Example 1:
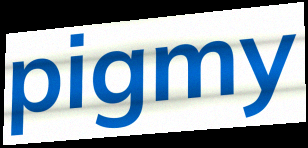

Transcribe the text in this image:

pigmy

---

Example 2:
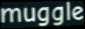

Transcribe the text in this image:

muggle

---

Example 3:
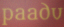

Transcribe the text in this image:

paadu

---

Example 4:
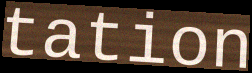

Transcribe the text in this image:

tation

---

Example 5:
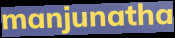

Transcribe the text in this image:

manjunatha